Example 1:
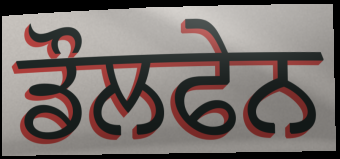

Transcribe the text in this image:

ਡੌਲਫੇਨ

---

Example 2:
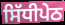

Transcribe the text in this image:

ਸਿੱਧੀਪੇਠ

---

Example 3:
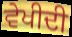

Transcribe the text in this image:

ਵੇਖੀਦੀ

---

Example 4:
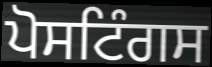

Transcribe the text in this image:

ਪੋਸਟਿੰਗਸ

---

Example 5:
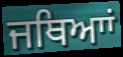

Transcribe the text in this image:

ਜਥਿਆਾਂ